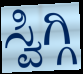
ಸ್ವಿಗ್ಗಿ